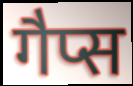
गैप्स